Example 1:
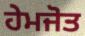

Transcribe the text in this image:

ਹੇਮਜੋਤ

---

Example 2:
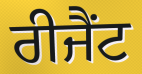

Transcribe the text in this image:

ਰੀਜੈਂਟ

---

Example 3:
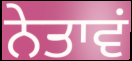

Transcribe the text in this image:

ਨੇਤਾਵਂ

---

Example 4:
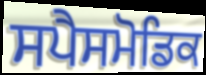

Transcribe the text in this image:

ਸਪੈਸਮੋਡਿਕ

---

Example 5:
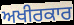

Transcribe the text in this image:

ਅਖੀਰਕਾਰ